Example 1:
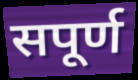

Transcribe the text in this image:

सपूर्ण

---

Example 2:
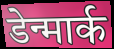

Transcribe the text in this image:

डेन्मार्क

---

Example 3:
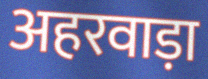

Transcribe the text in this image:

अहरवाड़ा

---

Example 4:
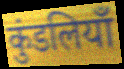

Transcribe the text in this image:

कुंडलियाँ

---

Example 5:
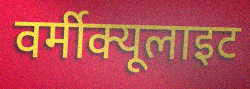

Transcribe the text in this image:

वर्मीक्यूलाइट